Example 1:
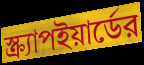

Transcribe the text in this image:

স্ক্র্যাপইয়ার্ডের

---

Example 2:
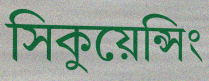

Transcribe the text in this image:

সিকুয়েন্সিং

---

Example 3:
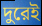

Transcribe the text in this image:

দুরেই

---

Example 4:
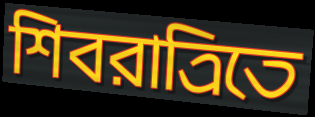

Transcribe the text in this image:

শিবরাত্রিতে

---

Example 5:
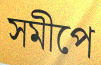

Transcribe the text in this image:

সমীপে